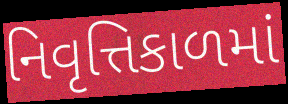
નિવૃત્તિકાળમાં